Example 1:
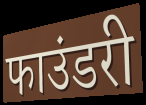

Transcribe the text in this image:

फाउंडरी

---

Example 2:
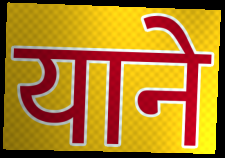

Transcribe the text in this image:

याने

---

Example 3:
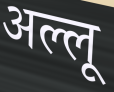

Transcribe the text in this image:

अल्लू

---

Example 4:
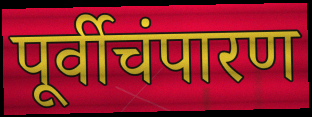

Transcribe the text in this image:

पूर्वीचंपारण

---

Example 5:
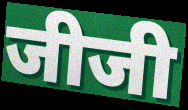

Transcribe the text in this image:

जीजी